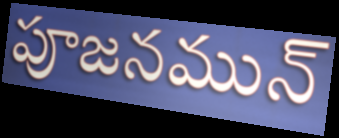
పూజనమున్